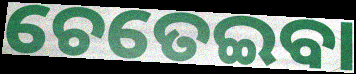
ଚେତେଇବା